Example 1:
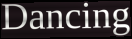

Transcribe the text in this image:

Dancing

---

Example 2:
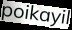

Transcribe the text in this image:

poikayil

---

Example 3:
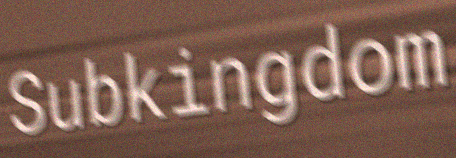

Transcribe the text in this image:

Subkingdom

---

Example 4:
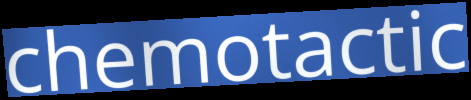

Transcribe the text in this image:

chemotactic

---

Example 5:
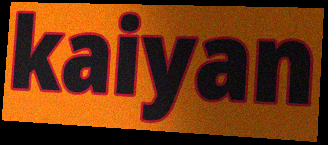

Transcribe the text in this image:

kaiyan